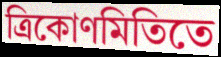
ত্রিকোণমিতিতে